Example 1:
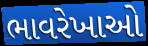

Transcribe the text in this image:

ભાવરેખાઓ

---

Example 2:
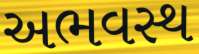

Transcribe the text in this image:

અભવસ્થ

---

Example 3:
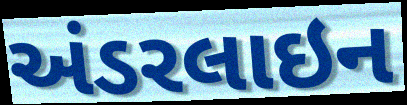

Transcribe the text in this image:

અંડરલાઇન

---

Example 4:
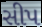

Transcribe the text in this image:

સીપ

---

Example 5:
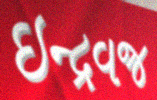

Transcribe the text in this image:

ઇન્દ્રવજ્ર